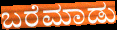
ಬರೆಮಾಡು